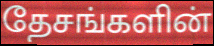
தேசங்களின்